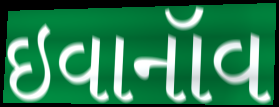
ઇવાનૉવ